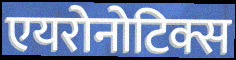
एयरोनोटिक्स